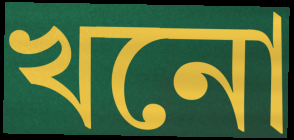
খনো